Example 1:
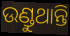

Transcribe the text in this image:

ଉଣ୍ଡୁଥାନ୍ତି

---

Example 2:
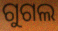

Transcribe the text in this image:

ଗୁଗଲ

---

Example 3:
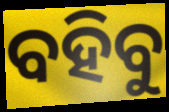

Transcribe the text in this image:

ବହିବୁ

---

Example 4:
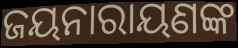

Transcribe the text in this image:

ଜୟନାରାୟଣଙ୍କ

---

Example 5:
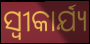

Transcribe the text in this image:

ସ୍ଵୀକାର୍ଯ୍ୟ